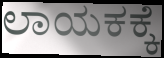
ಲಾಯಕಕ್ಕೆ